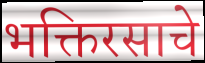
भक्तिरसाचे